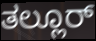
ತಲ್ಲೂರ್